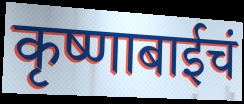
कृष्णाबाईचं